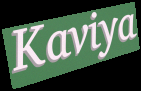
Kaviya